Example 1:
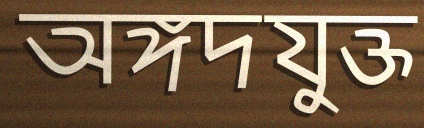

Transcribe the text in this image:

অঙ্গদযুক্ত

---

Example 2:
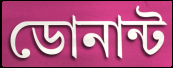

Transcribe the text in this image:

ডোনান্ট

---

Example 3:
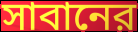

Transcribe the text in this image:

সাবানের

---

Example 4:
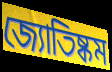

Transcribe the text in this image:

জ্যোতিষ্কম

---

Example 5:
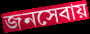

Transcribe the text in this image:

জনসেবায়